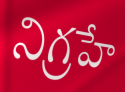
నిగ్రహే